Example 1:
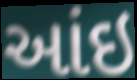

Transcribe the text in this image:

આંઇ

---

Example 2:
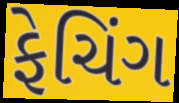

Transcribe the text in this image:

ફેચિંગ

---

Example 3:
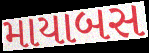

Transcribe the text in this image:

માયાબસ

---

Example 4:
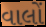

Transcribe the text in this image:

વાલોં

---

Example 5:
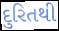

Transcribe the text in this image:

દુરિતથી